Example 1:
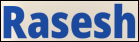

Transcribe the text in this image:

Rasesh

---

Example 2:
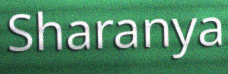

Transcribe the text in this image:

Sharanya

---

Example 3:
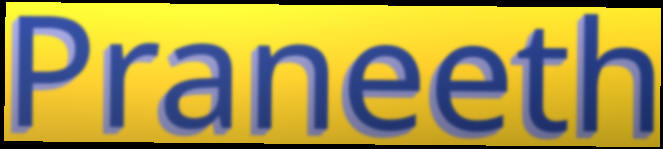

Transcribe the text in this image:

Praneeth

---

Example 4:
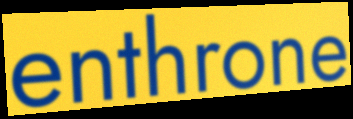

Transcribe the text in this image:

enthrone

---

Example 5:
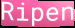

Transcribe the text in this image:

Ripen